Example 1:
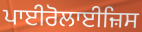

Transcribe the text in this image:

ਪਾਈਰੋਲਾਈਜ਼ਿਸ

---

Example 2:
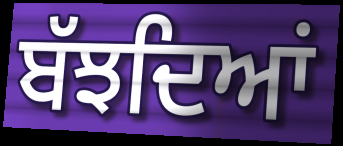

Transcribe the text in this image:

ਬੱਝਦਿਆਂ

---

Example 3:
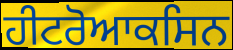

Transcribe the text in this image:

ਹੀਟਰੋਆਕਸਿਨ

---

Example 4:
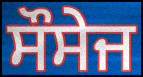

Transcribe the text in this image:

ਸੌਸੇਜ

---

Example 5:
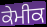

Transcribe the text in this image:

ਕੇਮੀਕ